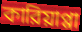
কারিয়াপ্পা